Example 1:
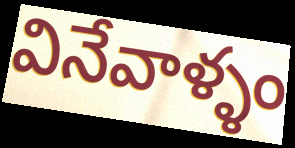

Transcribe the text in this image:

వినేవాళ్ళం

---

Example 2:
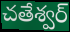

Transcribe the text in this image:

చతేశ్వర్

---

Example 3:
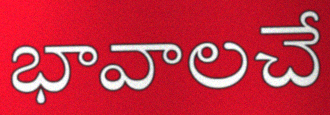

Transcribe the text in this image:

భావాలచే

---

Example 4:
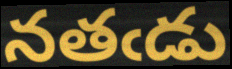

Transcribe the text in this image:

నతఁడు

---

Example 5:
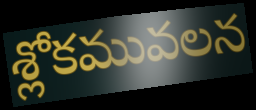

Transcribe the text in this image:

శ్లోకమువలన